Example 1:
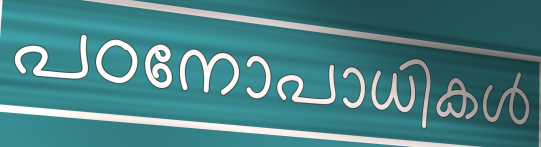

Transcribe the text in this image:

പഠനോപാധികൾ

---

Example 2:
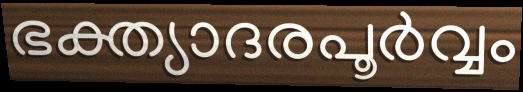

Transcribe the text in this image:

ഭക്ത്യാദരപൂർവ്വം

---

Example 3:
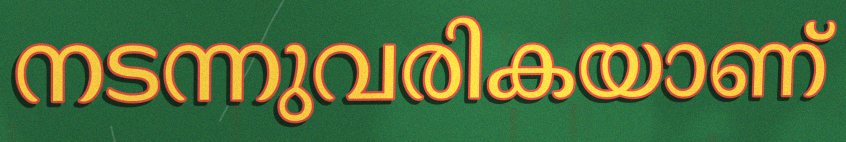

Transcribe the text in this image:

നടന്നുവരികയാണ്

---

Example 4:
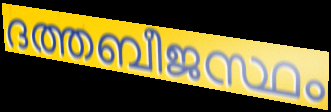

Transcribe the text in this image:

ദത്തബീജസ്ഥം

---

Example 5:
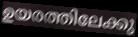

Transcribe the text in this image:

ഉയരത്തിലേക്കു